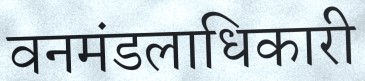
वनमंडलाधिकारी